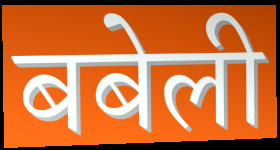
बबेली